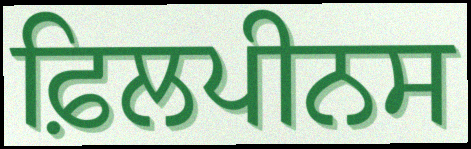
ਫ਼ਿਲਪੀਨਸ